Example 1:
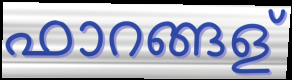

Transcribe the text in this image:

ഫാറങ്ങള്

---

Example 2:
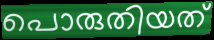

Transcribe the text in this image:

പൊരുതിയത്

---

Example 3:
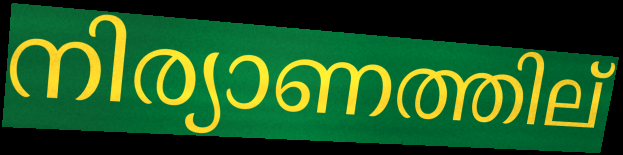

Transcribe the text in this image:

നിര്യാണത്തില്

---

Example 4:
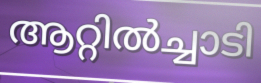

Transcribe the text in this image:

ആറ്റിൽച്ചാടി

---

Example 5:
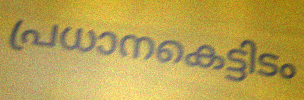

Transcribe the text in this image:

പ്രധാനകെട്ടിടം